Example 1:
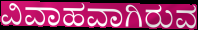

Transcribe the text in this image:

ವಿವಾಹವಾಗಿರುವ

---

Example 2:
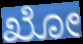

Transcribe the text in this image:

ಖೋ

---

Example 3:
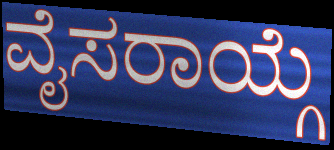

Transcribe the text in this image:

ವೈಸರಾಯ್ಗೆ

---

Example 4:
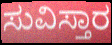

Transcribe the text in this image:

ಸುವಿಸ್ತಾರ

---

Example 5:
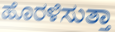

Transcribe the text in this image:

ಹೊರಳಿಸುತ್ತಾ